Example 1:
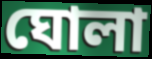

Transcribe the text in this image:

ঘোলা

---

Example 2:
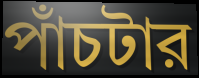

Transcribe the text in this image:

পাঁচটার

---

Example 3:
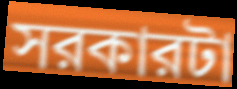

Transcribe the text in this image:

সরকারটা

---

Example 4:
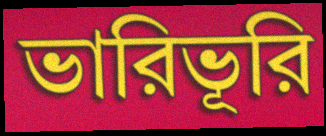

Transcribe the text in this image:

ভারিভূরি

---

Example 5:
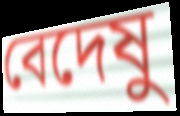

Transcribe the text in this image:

বেদেষু